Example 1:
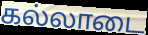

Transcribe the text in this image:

கல்லாடை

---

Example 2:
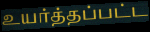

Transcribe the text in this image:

உயர்த்தப்பட்ட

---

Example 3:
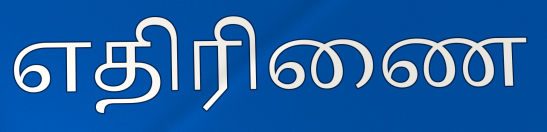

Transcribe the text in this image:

எதிரிணை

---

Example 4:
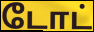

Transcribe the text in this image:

டோட்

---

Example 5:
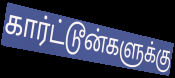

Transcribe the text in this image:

கார்ட்டூன்களுக்கு